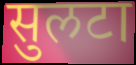
सुलटा